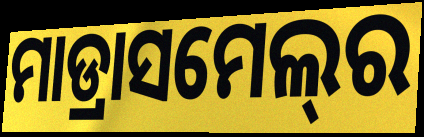
ମାଡ୍ରାସମେଲ୍‍ର